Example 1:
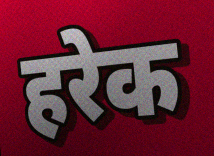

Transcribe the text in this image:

हरेक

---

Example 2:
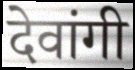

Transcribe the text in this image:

देवांगी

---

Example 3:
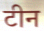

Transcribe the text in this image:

टीन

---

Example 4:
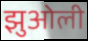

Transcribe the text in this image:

झुओली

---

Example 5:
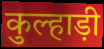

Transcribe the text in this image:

कुल्‍हाड़ी